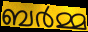
ബർമ്മ